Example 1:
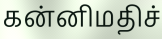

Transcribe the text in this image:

கன்னிமதிச்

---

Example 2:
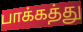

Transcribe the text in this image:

பாக்கத்து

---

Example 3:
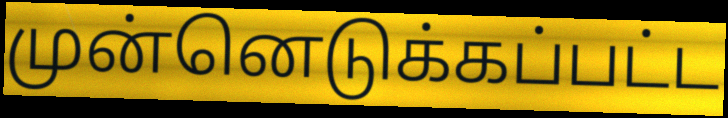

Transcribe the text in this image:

முன்னெடுக்கப்பட்ட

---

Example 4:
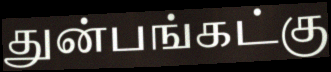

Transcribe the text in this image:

துன்பங்கட்கு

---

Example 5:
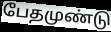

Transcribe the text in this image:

பேதமுண்டு